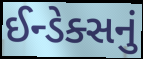
ઈન્ડેક્સનું